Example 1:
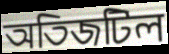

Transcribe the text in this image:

অতিজটিল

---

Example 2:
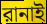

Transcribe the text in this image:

রানাই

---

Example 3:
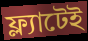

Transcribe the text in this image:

ফ্ল্যাটেই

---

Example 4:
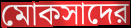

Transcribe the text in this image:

মোকসাদের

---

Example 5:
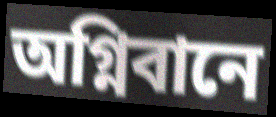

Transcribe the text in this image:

অগ্নিবানে